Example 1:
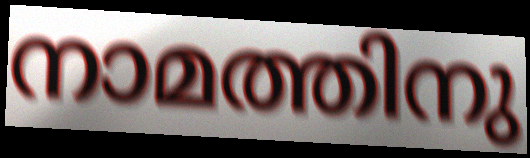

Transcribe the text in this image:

നാമത്തിനു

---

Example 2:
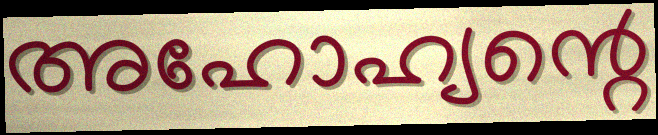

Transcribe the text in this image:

അഹോഹ്യന്റെ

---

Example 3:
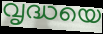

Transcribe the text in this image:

വൃദ്ധയെ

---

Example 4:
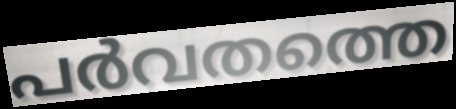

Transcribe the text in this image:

പർവതത്തെ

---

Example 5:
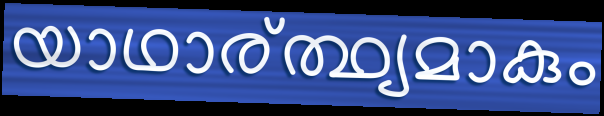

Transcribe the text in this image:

യാഥാര്ത്ഥ്യമാകും